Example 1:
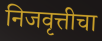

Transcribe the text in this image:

निजवृत्तीचा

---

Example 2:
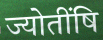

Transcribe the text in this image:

ज्योतींषि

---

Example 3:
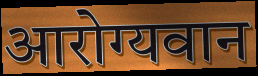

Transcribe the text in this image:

आरोग्यवान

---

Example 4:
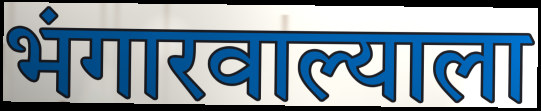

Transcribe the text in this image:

भंगारवाल्याला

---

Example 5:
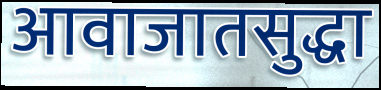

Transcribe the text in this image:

आवाजातसुद्धा